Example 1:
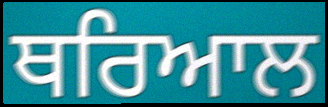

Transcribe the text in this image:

ਥਰਿਆਲ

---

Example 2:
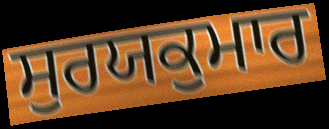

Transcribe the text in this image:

ਸੁਰਯਕੁਮਾਰ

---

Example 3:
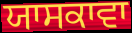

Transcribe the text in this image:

ਯਾਸਕਾਵਾ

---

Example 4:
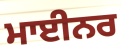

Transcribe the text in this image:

ਮਾਈਨਰ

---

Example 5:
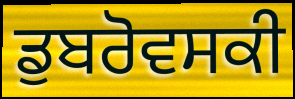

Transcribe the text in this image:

ਡੁਬਰੋਵਸਕੀ